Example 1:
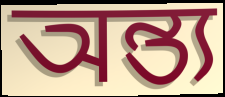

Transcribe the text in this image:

অন্ত্য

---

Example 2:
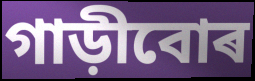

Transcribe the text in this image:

গাড়ীবোৰ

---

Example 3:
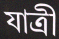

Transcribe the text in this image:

যাত্ৰী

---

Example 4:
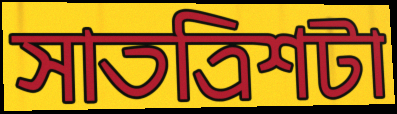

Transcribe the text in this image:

সাতত্ৰিশটা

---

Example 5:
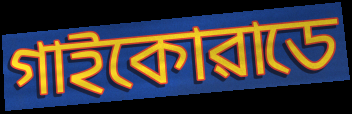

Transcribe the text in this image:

গাইকোৱাডে